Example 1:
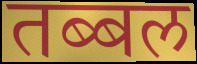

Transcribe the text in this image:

तब्बल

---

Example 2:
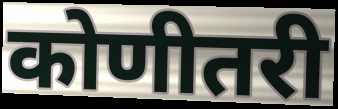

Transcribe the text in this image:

कोणीतरी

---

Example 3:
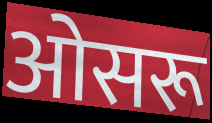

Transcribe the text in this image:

ओसरू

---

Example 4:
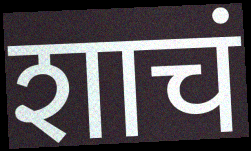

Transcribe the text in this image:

शाचं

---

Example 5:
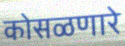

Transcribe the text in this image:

कोसळणारे